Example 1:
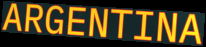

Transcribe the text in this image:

ARGENTINA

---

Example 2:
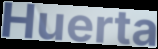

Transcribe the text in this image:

Huerta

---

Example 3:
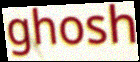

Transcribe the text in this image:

ghosh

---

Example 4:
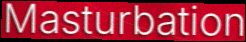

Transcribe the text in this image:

Masturbation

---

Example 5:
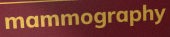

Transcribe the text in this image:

mammography